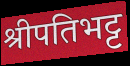
श्रीपतिभट्ट